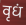
वृधं